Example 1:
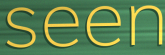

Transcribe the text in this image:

seen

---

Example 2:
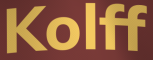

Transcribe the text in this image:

Kolff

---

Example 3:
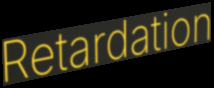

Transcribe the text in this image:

Retardation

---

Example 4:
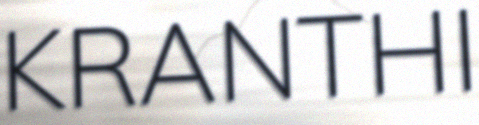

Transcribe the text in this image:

KRANTHI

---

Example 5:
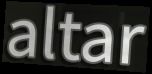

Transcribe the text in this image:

altar